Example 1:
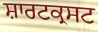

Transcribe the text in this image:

ਸ਼ਾਰਟਕ੍ਰਸਟ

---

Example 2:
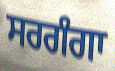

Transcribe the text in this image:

ਸਰਗੰਗਾ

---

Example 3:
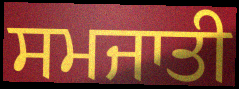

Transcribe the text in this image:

ਸਮਜਾਤੀ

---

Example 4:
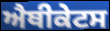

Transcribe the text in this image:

ਐਥੀਕੇਟਸ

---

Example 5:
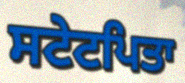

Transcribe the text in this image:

ਸਟੇਟਪਿਤਾ